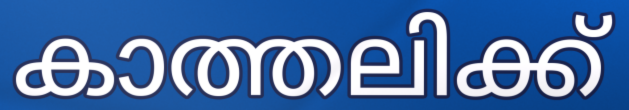
കാത്തലിക്ക്